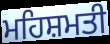
ਮਹਿਸ਼ਮਤੀ